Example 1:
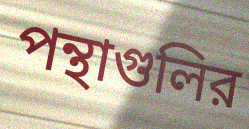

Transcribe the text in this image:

পন্থাগুলির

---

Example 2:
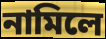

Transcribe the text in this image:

নামিলে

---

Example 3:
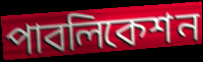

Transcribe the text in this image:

পাবলিকেশন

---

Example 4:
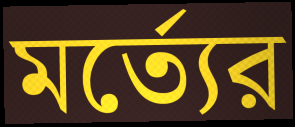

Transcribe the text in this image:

মর্ত্যের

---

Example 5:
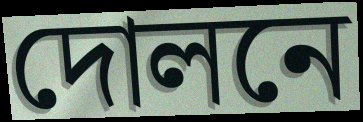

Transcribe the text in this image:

দোলনে